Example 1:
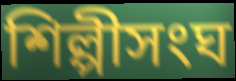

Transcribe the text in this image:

শিল্পীসংঘ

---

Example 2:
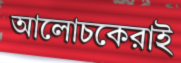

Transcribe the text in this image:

আলোচকেরাই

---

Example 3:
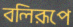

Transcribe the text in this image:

বলিরূপে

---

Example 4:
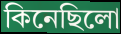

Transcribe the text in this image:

কিনেছিলো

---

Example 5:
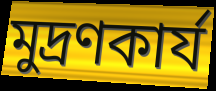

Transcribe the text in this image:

মুদ্রণকার্য